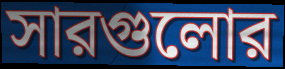
সারগুলোর